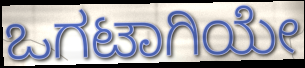
ಒಗಟಾಗಿಯೇ